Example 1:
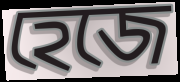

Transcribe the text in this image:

হেজে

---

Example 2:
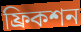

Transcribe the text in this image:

ফ্রিকশন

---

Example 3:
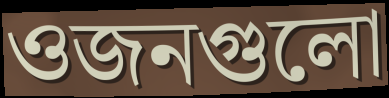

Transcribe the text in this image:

ওজনগুলো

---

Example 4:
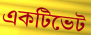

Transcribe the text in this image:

একটিভেট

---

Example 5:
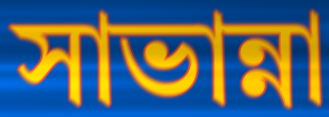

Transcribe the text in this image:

সাভান্না